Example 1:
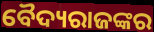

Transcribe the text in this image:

ବୈଦ୍ୟରାଜଙ୍କର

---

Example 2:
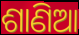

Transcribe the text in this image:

ଶାଣିଆ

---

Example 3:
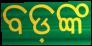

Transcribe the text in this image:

ବଡ଼ଙ୍କ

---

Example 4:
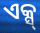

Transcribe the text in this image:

ଏକ୍ସ୍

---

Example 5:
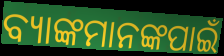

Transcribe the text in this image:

ବ୍ୟାଙ୍କମାନଙ୍କପାଇଁ